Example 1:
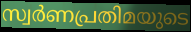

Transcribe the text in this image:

സ്വർണപ്രതിമയുടെ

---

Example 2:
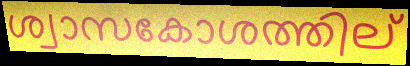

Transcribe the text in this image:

ശ്വാസകോശത്തില്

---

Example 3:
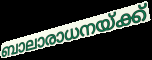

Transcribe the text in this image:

ബാലാരാധനയ്ക്ക്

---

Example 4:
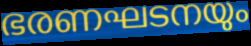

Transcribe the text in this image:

ഭരണഘടനയും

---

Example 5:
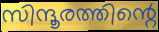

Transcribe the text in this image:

സിന്ദൂരത്തിന്റെ